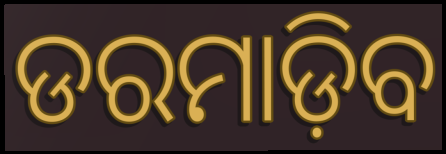
ଡରମାଡ଼ିବ